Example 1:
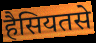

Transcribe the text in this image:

हैसियतसे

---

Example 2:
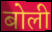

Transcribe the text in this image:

बोली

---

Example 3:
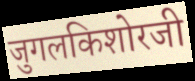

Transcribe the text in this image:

जुगलकिशोरजी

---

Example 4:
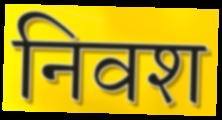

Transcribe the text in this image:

निवश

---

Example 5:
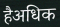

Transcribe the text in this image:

हैअधिक